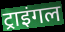
ट्राइंगल